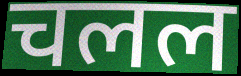
चलल